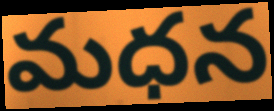
మధన